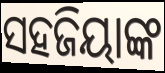
ସହଜିୟାଙ୍କ